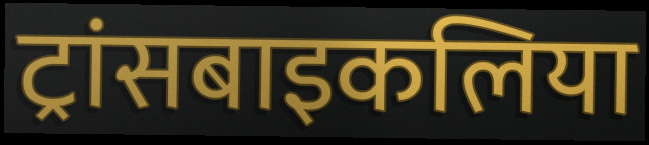
ट्रांसबाइकलिया